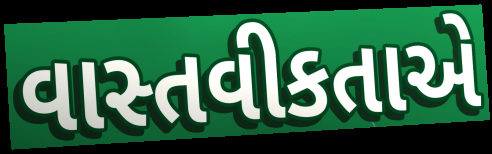
વાસ્તવીકતાએ